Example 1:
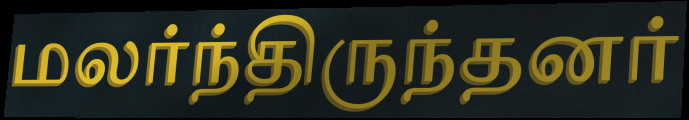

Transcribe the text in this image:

மலர்ந்திருந்தனர்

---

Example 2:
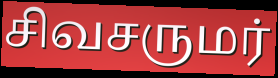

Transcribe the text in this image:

சிவசருமர்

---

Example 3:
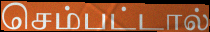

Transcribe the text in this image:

செம்பட்டால்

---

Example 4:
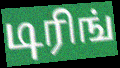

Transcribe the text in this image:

டிரிங்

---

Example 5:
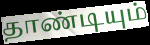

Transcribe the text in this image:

தாண்டியும்